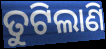
ତୁଟିଲାଣି